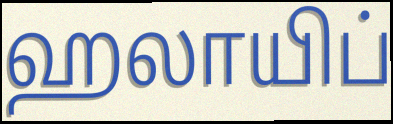
ஹலாயிப்